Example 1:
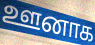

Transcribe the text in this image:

ஊனாக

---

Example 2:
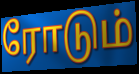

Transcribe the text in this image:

ரோடும்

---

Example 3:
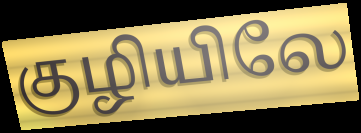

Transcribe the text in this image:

குழியிலே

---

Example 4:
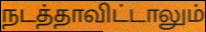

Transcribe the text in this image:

நடத்தாவிட்டாலும்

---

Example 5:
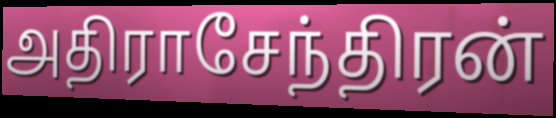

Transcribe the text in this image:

அதிராசேந்திரன்